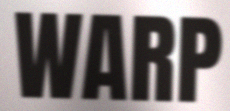
WARP